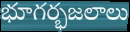
భూగర్భజలాలు